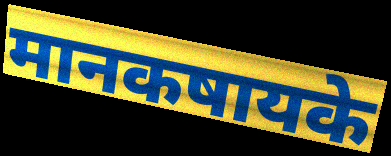
मानकषायके